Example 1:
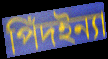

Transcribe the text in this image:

পিঁদইন্যা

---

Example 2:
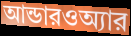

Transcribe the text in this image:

আন্ডারওঅ্যার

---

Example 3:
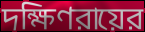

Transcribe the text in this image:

দক্ষিণরায়ের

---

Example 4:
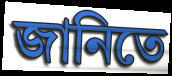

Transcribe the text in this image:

জানিতে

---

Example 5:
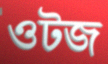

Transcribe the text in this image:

ওটজ